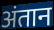
अंतान